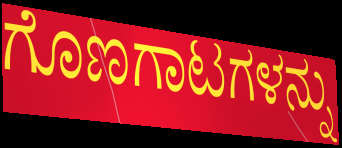
ಗೊಣಗಾಟಗಳನ್ನು